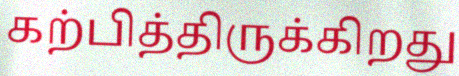
கற்பித்திருக்கிறது